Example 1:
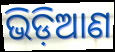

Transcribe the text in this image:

ଭିଡ଼ିଆଣ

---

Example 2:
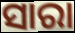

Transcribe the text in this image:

ସାରା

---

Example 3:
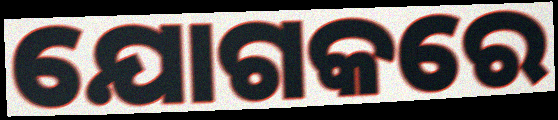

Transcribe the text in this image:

ଯୋଗକରେ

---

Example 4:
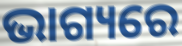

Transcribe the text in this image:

ଭାଗ୍ୟରେ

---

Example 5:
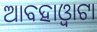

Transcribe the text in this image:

ଆବହାଓ୍ୱାଟା